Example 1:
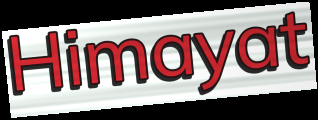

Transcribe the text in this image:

Himayat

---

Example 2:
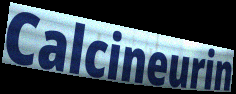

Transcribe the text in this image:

Calcineurin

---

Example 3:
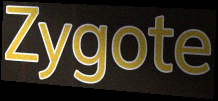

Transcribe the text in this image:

Zygote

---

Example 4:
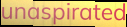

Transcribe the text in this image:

unaspirated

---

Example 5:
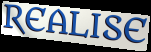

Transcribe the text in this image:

REALISE